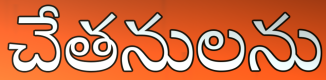
చేతనులను